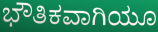
ಭೌತಿಕವಾಗಿಯೂ